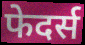
फेदर्स